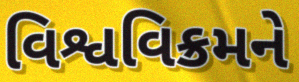
વિશ્વવિક્રમને